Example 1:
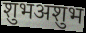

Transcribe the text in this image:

शुभअशुभ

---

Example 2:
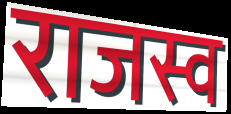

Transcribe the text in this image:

राजस्व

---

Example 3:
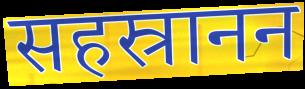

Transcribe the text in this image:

सहस्रानन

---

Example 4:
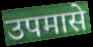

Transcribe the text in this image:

उपमासे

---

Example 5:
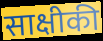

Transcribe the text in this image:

साक्षीकी